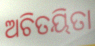
ଅଚିତୟିତା